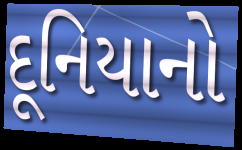
દૂનિયાનો